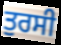
ਤੁਰਸੀ